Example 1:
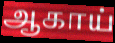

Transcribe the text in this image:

ஆகாய்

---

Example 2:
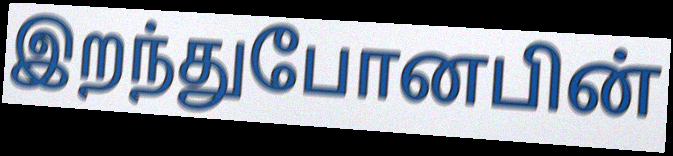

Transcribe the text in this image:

இறந்துபோனபின்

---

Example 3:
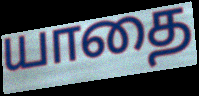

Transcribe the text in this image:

யாதை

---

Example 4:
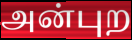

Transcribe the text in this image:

அன்புற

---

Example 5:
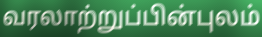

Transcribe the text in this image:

வரலாற்றுப்பின்புலம்